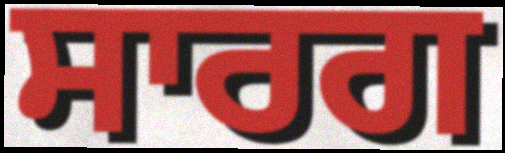
ਸਾਰਗ